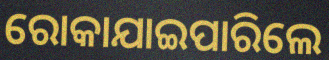
ରୋକାଯାଇପାରିଲେ